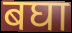
बघा